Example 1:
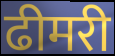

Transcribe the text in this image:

ढीमरी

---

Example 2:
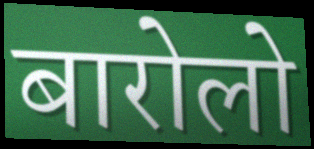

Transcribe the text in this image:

बारोलो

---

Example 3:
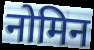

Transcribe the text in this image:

नोमिन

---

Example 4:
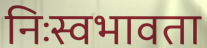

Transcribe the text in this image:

निःस्वभावता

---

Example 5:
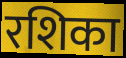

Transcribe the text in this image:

रशिका